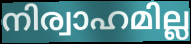
നിര്വാഹമില്ല